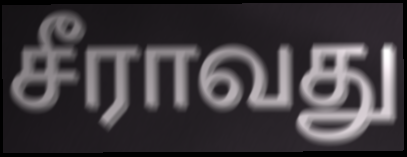
சீராவது